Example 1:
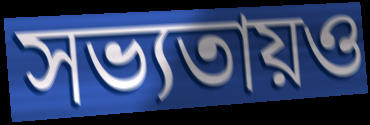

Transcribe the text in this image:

সভ্যতায়ও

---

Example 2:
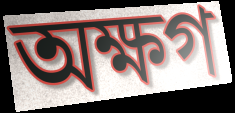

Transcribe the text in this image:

অক্ষগ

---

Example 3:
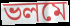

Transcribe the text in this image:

ভলমে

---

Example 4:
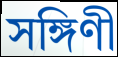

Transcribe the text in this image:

সঙ্গিণী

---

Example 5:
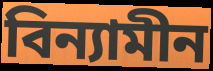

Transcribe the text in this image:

বিন্যামীন